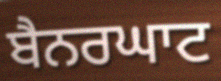
ਬੈਨਰਘਾਟ